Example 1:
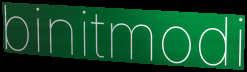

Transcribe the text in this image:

binitmodi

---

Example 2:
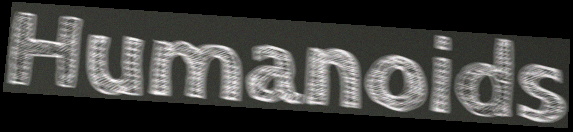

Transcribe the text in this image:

Humanoids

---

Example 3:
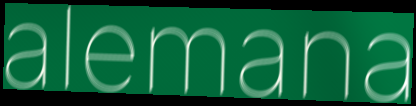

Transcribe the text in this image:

alemana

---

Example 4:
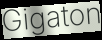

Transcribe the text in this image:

Gigaton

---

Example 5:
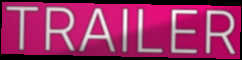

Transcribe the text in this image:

TRAILER